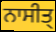
ਨਾਸੀਤ੍